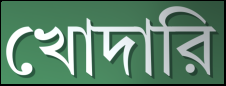
খোদারি